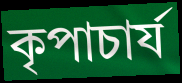
কৃপাচার্য